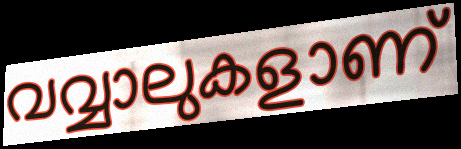
വവ്വാലുകളാണ്